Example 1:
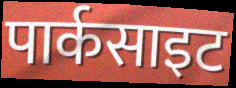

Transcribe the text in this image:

पार्कसाइट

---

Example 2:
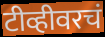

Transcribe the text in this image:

टीव्हीवरचं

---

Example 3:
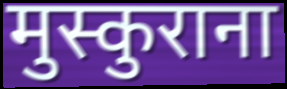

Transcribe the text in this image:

मुस्कुराना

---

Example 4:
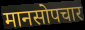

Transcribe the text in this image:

मानसोपचार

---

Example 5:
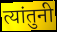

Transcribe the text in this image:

त्यांतुनी